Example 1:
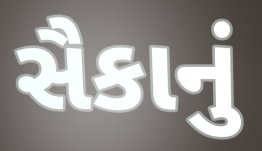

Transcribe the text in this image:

સૈકાનું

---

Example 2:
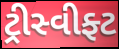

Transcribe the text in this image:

ટ્રીસ્વીફ્ટ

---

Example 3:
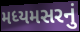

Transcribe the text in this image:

મધ્યમસરનું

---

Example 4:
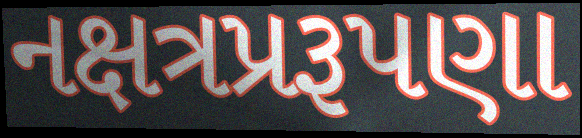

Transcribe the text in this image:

નક્ષત્રપ્રરૂપણા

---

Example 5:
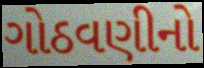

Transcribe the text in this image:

ગોઠવણીનો